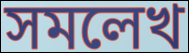
সমলেখ